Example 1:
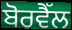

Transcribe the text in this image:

ਬੋਰਵੈੱਲ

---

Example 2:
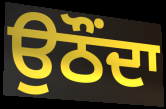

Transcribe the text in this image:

ਉਠੌਂਦਾ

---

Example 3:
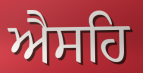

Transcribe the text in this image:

ਐਸਹਿ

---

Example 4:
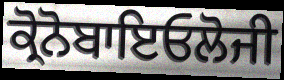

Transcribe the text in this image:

ਕ੍ਰੋਨੋਬਾਇਓਲੋਜੀ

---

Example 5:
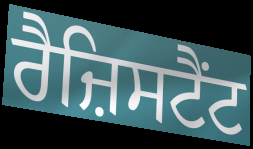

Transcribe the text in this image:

ਰੈਜ਼ਿਸਟੈਂਟ